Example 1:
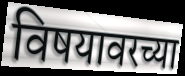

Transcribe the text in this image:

विषयावरच्या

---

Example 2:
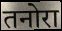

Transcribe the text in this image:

तनोरा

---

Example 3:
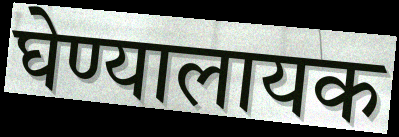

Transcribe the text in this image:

घेण्यालायक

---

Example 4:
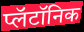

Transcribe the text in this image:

प्लॅटॉनिक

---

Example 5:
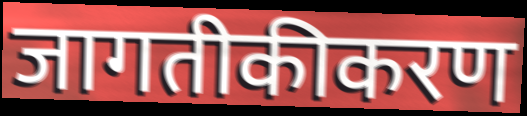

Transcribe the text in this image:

जागतीकीकरण